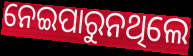
ନେଇପାରୁନଥିଲେ